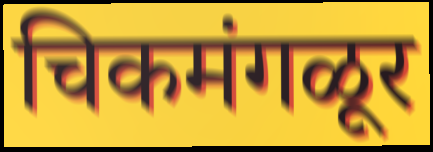
चिकमंगळूर